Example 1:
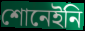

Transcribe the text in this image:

শোনেইনি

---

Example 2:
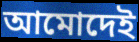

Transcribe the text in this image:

আমোদেই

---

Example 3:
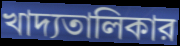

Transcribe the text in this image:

খাদ্যতালিকার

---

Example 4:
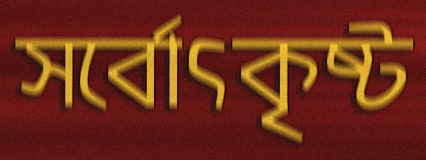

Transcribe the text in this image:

সর্বোৎকৃষ্ট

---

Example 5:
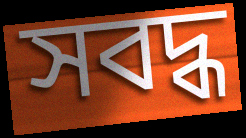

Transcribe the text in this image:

সবদ্ধ